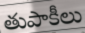
తుపాకీలు